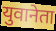
युवानेता